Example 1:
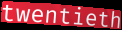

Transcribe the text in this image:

twentieth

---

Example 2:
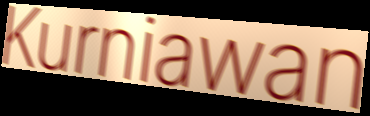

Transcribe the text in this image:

Kurniawan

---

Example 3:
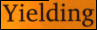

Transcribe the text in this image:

Yielding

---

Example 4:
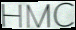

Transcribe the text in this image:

HMC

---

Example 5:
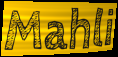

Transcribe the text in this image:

Mahli